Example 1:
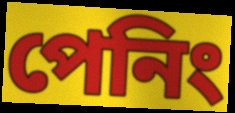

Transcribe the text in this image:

পেনিং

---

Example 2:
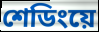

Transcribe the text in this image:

শেডিংয়ে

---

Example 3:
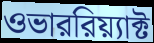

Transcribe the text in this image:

ওভাররিয়্যাক্ট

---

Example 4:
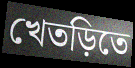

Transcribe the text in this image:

খেতড়িতে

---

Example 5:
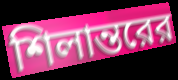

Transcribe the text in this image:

শিলান্তরের